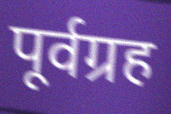
पूर्वग्रह